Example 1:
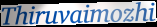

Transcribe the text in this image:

Thiruvaimozhi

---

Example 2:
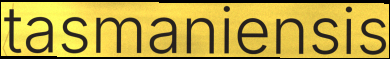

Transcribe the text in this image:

tasmaniensis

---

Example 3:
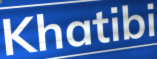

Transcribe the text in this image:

Khatibi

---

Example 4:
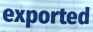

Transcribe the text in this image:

exported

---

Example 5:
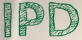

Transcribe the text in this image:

IPD